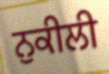
ਨੁਕੀਲੀ